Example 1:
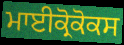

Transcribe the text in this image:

ਮਾਈਕ੍ਰੋਕੋਕਸ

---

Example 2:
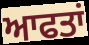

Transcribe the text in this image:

ਆਫਤਾਂ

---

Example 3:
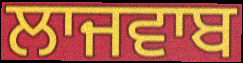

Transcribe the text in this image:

ਲਾਜਵਾਬ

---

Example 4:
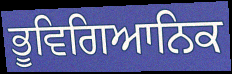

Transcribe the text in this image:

ਭੂਵਿਗਿਆਨਿਕ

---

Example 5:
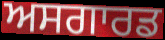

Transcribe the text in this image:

ਅਸਗਾਰਡ